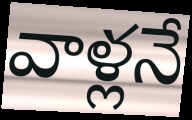
వాళ్లనే